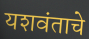
यशवंताचे